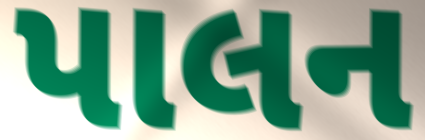
પાલન